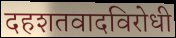
दहशतवादविरोधी